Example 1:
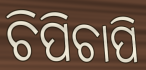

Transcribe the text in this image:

ଚିପିଚାପି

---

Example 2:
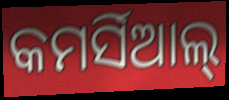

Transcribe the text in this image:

କମର୍ସିଆଲ୍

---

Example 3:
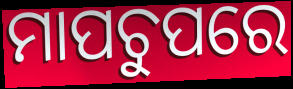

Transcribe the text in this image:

ମାପଚୁପରେ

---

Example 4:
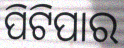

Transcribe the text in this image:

ପିଟିପାର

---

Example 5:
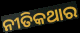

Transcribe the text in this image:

ନୀତିକଥାର